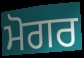
ਮੋਗਰ